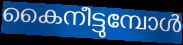
കൈനീട്ടുമ്പോൾ